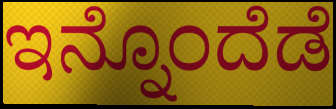
ಇನ್ನೊಂದೆಡೆ